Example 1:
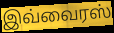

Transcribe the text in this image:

இவ்வைரஸ்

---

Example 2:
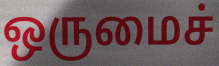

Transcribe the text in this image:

ஒருமைச்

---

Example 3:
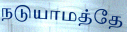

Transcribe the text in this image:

நடுயாமத்தே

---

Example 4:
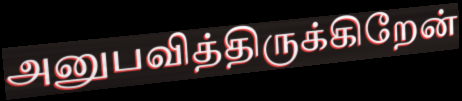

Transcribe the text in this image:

அனுபவித்திருக்கிறேன்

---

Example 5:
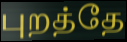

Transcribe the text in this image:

புறத்தே